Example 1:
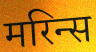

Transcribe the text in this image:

मरिन्स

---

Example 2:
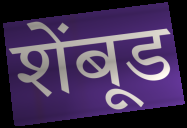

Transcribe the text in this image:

शेंबूड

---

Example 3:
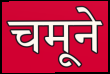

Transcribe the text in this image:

चमूने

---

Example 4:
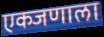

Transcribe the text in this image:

एकजणाला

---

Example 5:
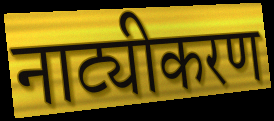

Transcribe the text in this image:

नाट्यीकरण